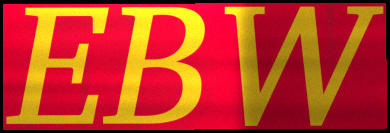
EBW